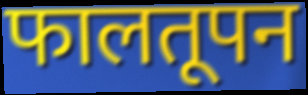
फालतूपन